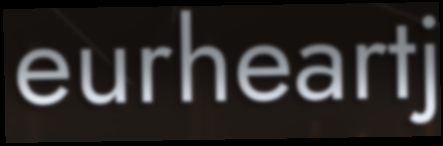
eurheartj